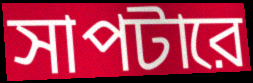
সাপটারে